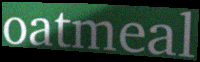
oatmeal